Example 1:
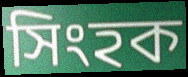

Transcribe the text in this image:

সিংহক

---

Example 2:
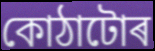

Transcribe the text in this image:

কোঠাটোৰ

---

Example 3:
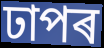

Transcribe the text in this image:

ঢাপৰ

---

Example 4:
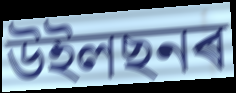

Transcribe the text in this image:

উইলছনৰ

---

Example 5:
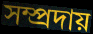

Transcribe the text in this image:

সম্প্ৰদায়